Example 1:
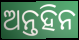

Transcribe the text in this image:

ଅନ୍ତହିନ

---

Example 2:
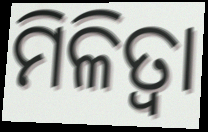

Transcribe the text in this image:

ମିଳିତ୍ଵା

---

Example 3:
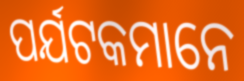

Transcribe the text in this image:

ପର୍ଯଟକମାନେ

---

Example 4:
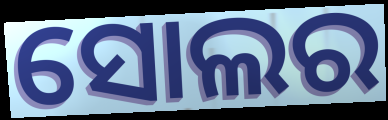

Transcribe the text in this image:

ସୋଲର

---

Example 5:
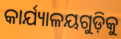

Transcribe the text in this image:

କାର୍ଯ୍ୟାଳୟଗୁଡ଼ିକୁ